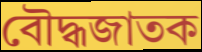
বৌদ্ধজাতক